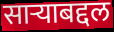
साऱ्याबद्दल